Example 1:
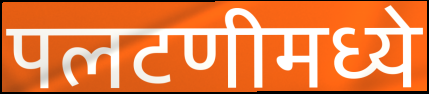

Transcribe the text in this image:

पलटणीमध्ये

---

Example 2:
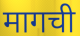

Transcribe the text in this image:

मागची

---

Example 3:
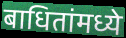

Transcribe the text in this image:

बाधितांमध्ये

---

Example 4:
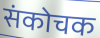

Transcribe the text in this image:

संकोचक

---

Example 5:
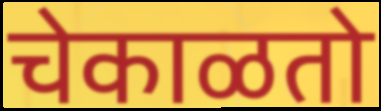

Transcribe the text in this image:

चेकाळतो